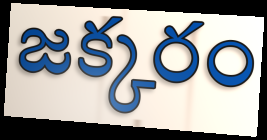
జక్కరం